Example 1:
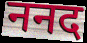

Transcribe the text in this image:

ननद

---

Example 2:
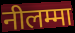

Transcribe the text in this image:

नीलम्मा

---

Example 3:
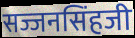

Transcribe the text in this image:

सज्जनसिंहजी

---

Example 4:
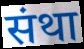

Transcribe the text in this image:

संथा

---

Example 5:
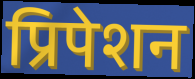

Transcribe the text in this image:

प्रिपेशन